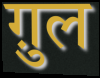
ग़ुल